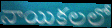
నాయికలలో